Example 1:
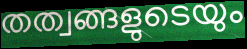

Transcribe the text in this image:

തത്വങ്ങളുടെയും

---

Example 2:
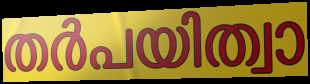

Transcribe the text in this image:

തർപയിത്വാ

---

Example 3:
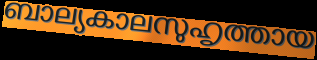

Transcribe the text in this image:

ബാല്യകാലസുഹൃത്തായ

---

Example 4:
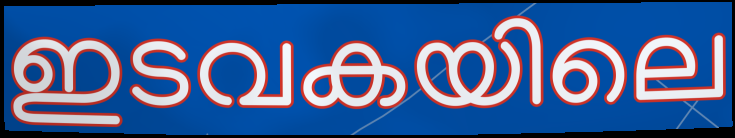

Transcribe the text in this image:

ഇടവകയിലെ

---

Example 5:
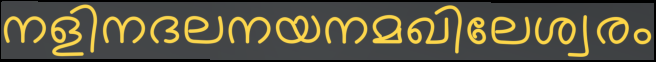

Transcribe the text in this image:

നളിനദലനയനമഖിലേശ്വരം